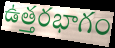
ఉత్తరభాగం